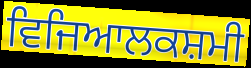
ਵਿਜਿਆਲਕਸ਼ਮੀ